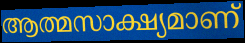
ആത്മസാക്ഷ്യമാണ്